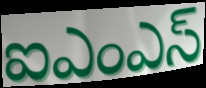
ఐఎంఎస్